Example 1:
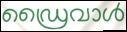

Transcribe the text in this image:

ഡ്രൈവാൾ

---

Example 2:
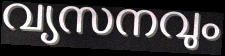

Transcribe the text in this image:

വ്യസനവും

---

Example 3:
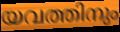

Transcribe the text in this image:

യവത്തിനും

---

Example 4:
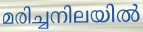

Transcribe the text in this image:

മരിച്ചനിലയിൽ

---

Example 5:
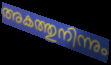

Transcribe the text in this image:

അകത്തുനിന്നും